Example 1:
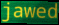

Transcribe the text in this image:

jawed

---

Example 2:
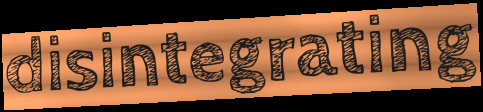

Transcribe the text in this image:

disintegrating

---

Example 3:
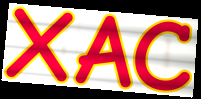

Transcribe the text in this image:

XAC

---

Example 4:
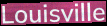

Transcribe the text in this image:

Louisville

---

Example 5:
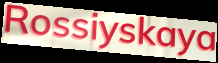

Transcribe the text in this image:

Rossiyskaya